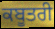
ਕਬੂਤਰੀ